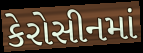
કેરોસીનમાં